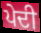
ਪੇਦੀ